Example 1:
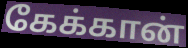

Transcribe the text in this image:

கேக்கான்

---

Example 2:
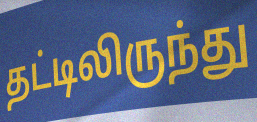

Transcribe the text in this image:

தட்டிலிருந்து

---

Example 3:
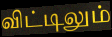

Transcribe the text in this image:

விட்டிலும்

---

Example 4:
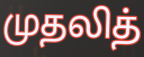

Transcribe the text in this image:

முதலித்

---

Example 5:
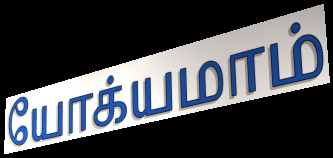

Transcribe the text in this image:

யோக்யமாம்